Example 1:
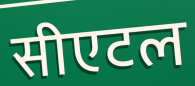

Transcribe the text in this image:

सीएटल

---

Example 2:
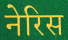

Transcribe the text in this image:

नेरिस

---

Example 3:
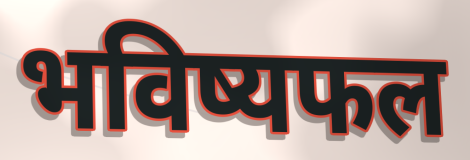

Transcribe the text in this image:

भविष्यफल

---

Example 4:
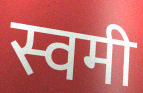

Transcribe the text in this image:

स्वमी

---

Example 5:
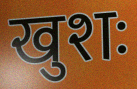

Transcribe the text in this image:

खुशः